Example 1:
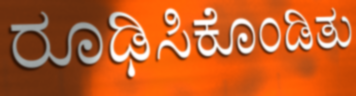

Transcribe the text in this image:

ರೂಢಿಸಿಕೊಂಡಿತು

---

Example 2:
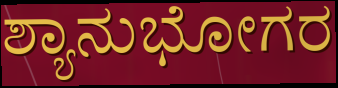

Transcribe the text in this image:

ಶ್ಯಾನುಭೋಗರ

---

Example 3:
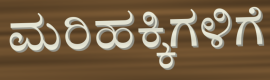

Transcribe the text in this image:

ಮರಿಹಕ್ಕಿಗಳಿಗೆ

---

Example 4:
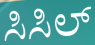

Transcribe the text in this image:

ಸಿಸಿಲ್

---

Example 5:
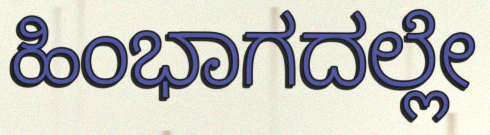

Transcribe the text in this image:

ಹಿಂಭಾಗದಲ್ಲೇ